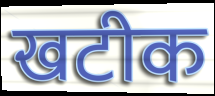
खटीक